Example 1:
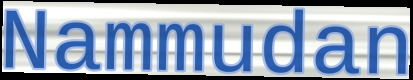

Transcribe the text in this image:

Nammudan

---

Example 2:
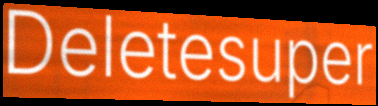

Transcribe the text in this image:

Deletesuper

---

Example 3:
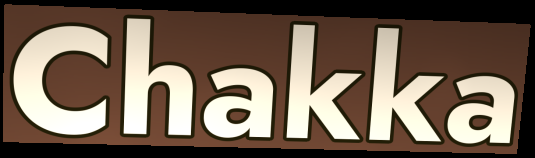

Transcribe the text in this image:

Chakka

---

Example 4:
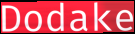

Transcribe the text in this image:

Dodake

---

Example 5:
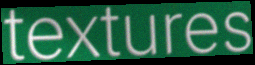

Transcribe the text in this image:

textures